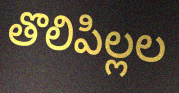
తొలిపిల్లల